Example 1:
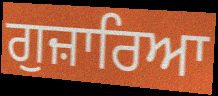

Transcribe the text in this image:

ਗੁਜ਼ਾਰਿਆ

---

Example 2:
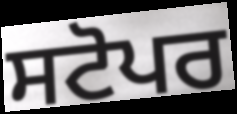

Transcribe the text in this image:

ਸਟੋਪਰ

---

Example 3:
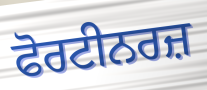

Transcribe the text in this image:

ਫੋਰਟੀਨਰਜ਼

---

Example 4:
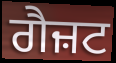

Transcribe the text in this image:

ਗੈਜ਼ਟ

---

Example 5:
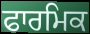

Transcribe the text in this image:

ਫਾਰਮਿਕ